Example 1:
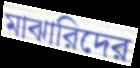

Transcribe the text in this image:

মাঝারিদের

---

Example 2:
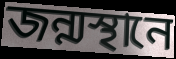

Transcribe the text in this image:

জন্মস্থানে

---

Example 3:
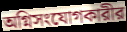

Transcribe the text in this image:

অগ্নিসংযোগকারীর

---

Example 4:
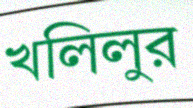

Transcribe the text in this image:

খলিলুর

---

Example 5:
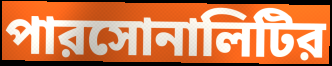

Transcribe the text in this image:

পারসোনালিটির